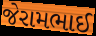
જેરામભાઈ